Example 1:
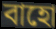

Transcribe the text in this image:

বাহো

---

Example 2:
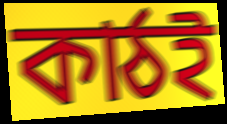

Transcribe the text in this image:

কাঠই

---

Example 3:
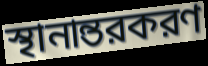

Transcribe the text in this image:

স্থানান্তরকরণ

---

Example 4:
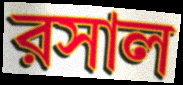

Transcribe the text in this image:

রসাল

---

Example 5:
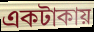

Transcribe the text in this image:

একটাকায়